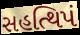
સહત્થિપં